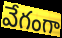
వేగంగా